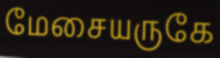
மேசையருகே